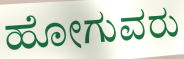
ಹೋಗುವರು